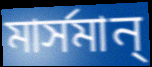
মার্সমান্